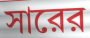
সারের